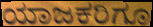
ಯಾಜಕರಿಗೂ